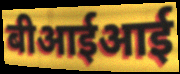
बीआईआई